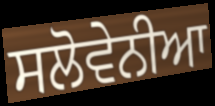
ਸਲੋਵੇਨੀਆ